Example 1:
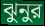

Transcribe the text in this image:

ঝুনুর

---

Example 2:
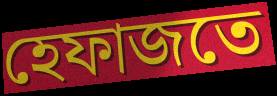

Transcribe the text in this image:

হেফাজতে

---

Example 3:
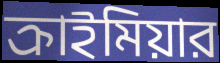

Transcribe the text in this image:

ক্রাইমিয়ার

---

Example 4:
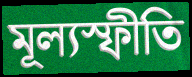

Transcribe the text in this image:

মূল্যস্ফীতি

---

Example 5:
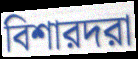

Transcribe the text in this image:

বিশারদরা